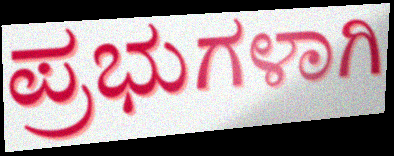
ಪ್ರಭುಗಳಾಗಿ